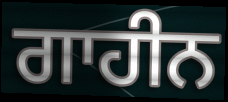
ਗਾਹੀਨ